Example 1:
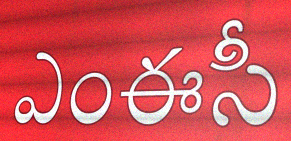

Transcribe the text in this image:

ఎంఈసీ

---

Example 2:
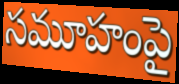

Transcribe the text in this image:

సమూహంపై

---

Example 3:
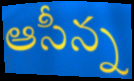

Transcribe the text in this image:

ఆసీన్న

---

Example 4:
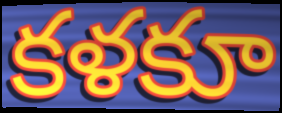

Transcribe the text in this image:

కళకూ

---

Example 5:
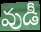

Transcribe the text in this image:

వుడీ